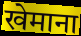
खेमाना